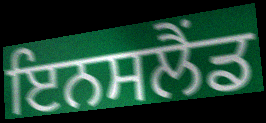
ਇਨਸਲੈਂਡ